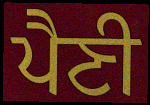
ਪੈਣੀ